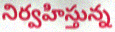
నిర్వహిస్తున్న